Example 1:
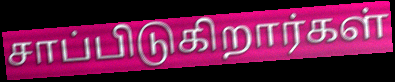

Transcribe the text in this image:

சாப்பிடுகிறார்கள்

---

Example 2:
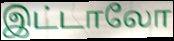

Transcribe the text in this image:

இட்டாலோ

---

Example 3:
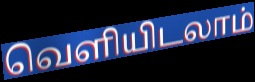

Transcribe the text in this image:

வெளியிடலாம்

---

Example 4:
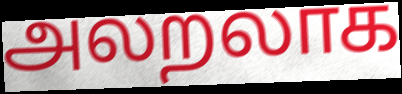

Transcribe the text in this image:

அலறலாக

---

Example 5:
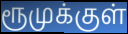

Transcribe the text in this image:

ரூமுக்குள்